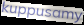
kuppusamy